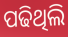
ପଢିଥିଲି